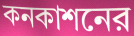
কনকাশনের